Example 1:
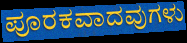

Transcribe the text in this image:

ಪೂರಕವಾದವುಗಳು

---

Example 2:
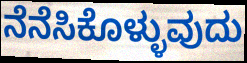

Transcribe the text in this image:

ನೆನೆಸಿಕೊಳ್ಳುವುದು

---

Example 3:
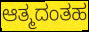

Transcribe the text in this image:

ಆತ್ಮದಂತಹ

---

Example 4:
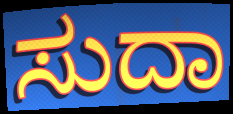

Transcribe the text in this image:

ಸುದಾ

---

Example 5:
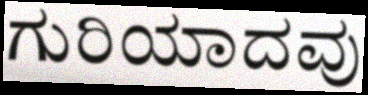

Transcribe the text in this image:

ಗುರಿಯಾದವು